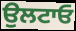
ਉਲਟਾਓ